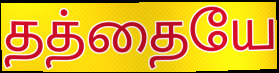
தத்தையே